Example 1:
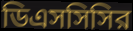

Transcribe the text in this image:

ডিএসসিসির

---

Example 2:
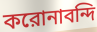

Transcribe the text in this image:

করোনাবন্দি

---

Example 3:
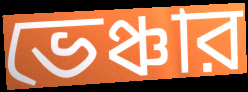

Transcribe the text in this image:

ভেঞ্চার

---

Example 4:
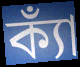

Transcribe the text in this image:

ক্যাঁ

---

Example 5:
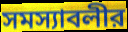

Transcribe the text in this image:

সমস্যাবলীর